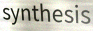
synthesis